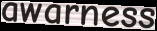
awarness